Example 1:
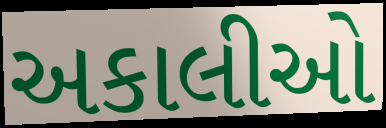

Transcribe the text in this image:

અકાલીઓ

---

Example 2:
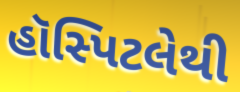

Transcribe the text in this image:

હૉસ્પિટલેથી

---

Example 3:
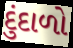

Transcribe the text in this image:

દુંદાળો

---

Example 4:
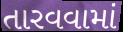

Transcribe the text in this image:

તારવવામાં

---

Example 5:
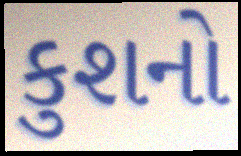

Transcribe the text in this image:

કુશનો